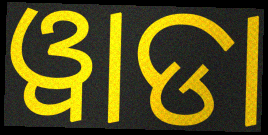
ୱାଡା